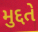
મુદ્દતે